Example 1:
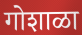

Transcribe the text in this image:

गोशाळा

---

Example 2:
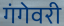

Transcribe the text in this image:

गंगेवरी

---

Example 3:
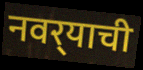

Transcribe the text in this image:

नवर्‍याची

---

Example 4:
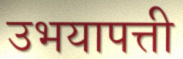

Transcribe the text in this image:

उभयापत्ती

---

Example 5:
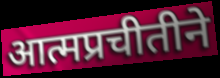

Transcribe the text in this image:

आत्मप्रचीतीने